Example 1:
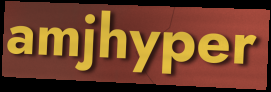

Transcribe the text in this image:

amjhyper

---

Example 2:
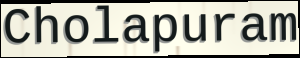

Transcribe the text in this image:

Cholapuram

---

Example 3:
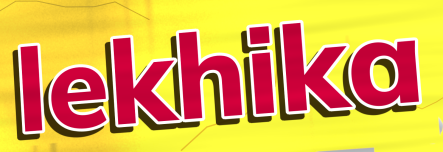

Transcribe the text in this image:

lekhika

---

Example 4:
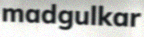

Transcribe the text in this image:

madgulkar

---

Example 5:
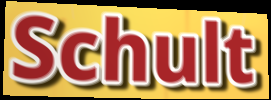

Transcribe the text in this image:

Schult